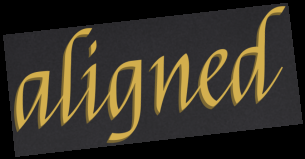
aligned